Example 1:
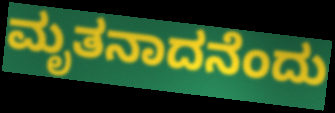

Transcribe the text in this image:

ಮೃತನಾದನೆಂದು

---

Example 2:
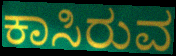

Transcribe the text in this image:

ಕಾಸಿರುವ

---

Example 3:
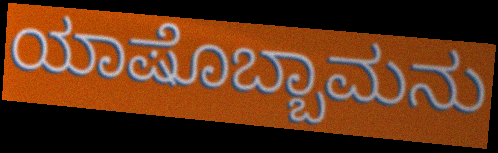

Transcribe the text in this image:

ಯಾಷೊಬ್ಬಾಮನು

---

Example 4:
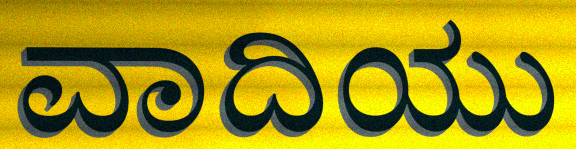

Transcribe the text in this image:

ವಾದಿಯು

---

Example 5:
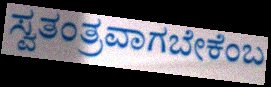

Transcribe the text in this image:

ಸ್ವತಂತ್ರವಾಗಬೇಕೆಂಬ